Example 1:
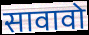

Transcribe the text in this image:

सावावो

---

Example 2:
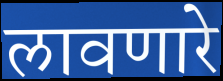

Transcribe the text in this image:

लावणारे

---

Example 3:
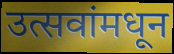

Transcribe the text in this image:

उत्सवांमधून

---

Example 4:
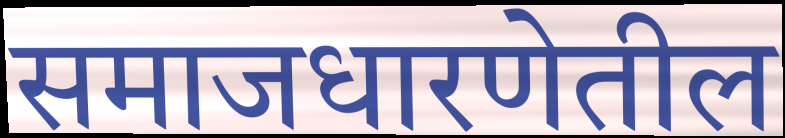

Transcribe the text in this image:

समाजधारणेतील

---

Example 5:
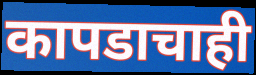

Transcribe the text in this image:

कापडाचाही